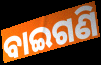
ବାଇଗଣି